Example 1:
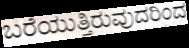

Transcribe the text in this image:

ಬರೆಯುತ್ತಿರುವುದರಿಂದ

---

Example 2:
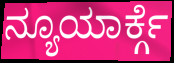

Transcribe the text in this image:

ನ್ಯೂಯಾರ್ಕ್ಗೆ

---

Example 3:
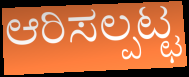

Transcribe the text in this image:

ಆರಿಸಲ್ಪಟ್ಟ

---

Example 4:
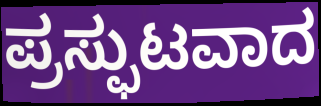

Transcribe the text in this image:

ಪ್ರಸ್ಫುಟವಾದ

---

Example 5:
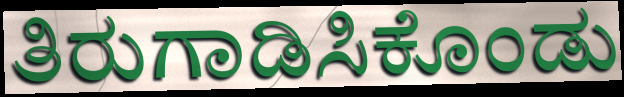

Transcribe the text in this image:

ತಿರುಗಾಡಿಸಿಕೊಂಡು